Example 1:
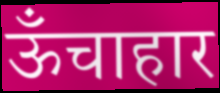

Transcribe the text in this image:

ऊँचाहार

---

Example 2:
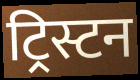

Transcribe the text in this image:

ट्रिस्टन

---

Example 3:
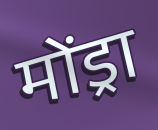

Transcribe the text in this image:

मोंड्रा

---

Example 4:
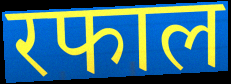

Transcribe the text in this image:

रफाल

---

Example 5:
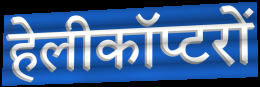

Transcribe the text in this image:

हेलीकॉप्‍टरों